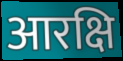
आरक्षि